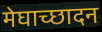
मेघाच्छादन